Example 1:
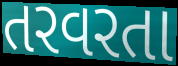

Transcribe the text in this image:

તરવરતા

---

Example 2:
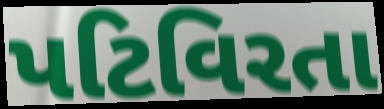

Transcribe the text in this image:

પટિવિરતા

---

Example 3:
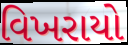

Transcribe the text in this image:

વિખરાયો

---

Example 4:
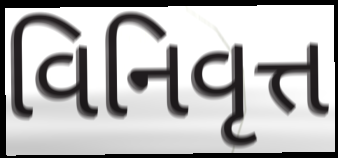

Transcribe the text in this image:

વિનિવૃત્ત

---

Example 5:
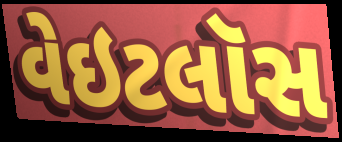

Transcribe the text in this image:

વેઇટલૉસ